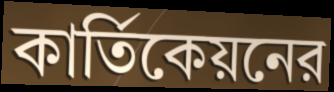
কার্তিকেয়নের